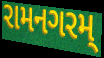
રામનગરમ્